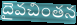
దైవచింతన